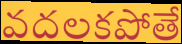
వదలకపోతే